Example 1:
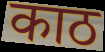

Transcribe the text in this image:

काठ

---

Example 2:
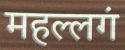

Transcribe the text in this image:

महल्लगं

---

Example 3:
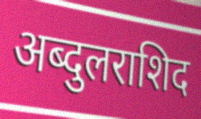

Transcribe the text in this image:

अब्दुलराशिद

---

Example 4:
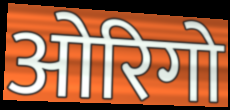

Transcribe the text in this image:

ओरिगो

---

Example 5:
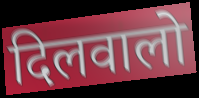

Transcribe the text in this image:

दिलवालो